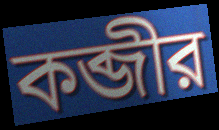
কব্জীর